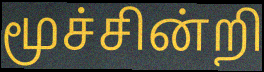
மூச்சின்றி